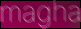
magha